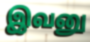
இவனு